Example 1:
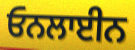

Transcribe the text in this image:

ਓਨਲਾਈਨ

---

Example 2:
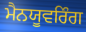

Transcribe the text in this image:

ਮੈਨਯੂਵਰਿੰਗ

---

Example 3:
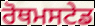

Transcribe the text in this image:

ਰੋਥਮਸਟੇਡ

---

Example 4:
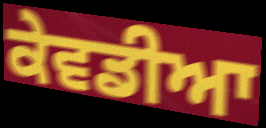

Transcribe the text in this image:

ਕੇਵਡੀਆ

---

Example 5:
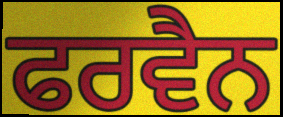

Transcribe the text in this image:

ਫਰਵੈਨ